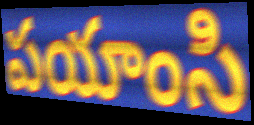
పయాంసి